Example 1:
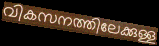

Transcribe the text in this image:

വികസനത്തിലേക്കുള്ള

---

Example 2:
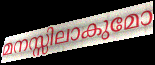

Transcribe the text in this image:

മനസ്സിലാകുമോ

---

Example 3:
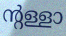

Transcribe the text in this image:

ന്റള്ളാ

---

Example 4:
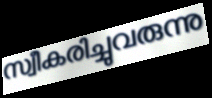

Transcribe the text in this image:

സ്വീകരിച്ചുവരുന്നു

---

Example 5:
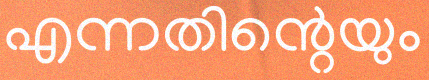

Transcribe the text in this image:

എന്നതിന്റെയും